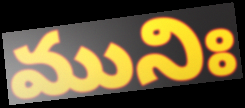
మునిః